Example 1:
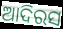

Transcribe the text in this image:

ଆଦିରସ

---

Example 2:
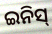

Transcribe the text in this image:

ଇନିସ୍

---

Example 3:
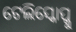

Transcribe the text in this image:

ଟେଲିସ୍କୋପ୍କୁ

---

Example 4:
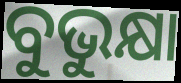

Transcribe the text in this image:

ବୁଭୁକ୍ଷା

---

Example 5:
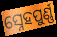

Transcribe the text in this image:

ସ୍ନେହପୁର୍ଣ୍ଣ